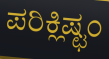
ಪರಿಕ್ಲಿಷ್ಟಂ